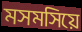
মসমসিয়ে